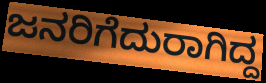
ಜನರಿಗೆದುರಾಗಿದ್ದ